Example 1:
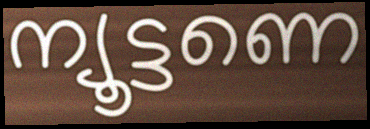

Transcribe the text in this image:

ന്യൂട്ടണെ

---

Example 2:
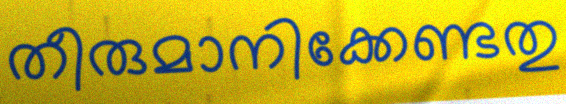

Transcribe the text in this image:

തീരുമാനിക്കേണ്ടതു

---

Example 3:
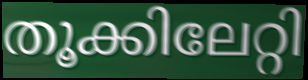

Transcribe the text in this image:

തൂക്കിലേറ്റി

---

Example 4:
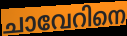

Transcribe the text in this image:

ചാവേറിനെ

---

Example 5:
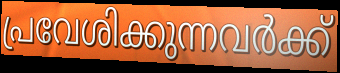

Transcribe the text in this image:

പ്രവേശിക്കുന്നവർക്ക്